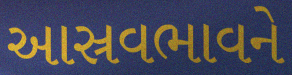
આસ્રવભાવને